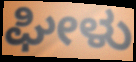
ಘೀಳು